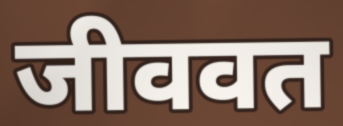
जीववत